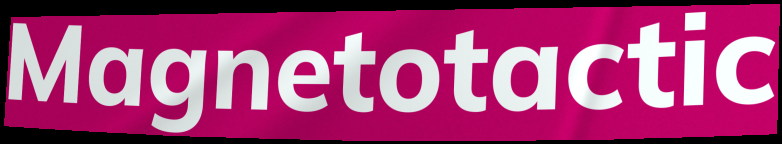
Magnetotactic